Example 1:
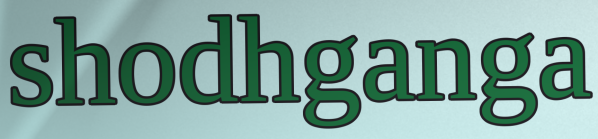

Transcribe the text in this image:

shodhganga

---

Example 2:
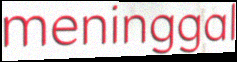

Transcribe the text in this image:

meninggal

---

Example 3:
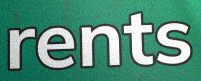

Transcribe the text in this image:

rents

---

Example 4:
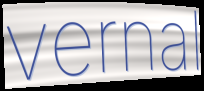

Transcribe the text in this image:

vernal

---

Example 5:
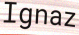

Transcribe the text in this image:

Ignaz